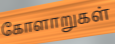
கோளாறுகள்